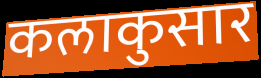
कलाकुसार